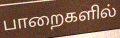
பாறைகளில்